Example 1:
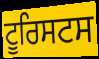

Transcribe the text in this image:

ਟੂਰਿਸਟਸ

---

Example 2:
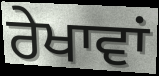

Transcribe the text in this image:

ਰੇਖਾਵਾਂ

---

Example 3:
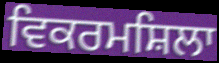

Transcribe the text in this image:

ਵਿਕਰਮਸ਼ਿਲਾ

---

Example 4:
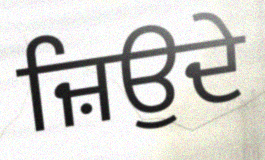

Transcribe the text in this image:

ਜ਼ਿਉਦੇ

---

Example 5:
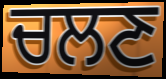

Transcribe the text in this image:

ਚਲਣ